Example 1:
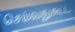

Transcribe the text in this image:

செய்வதுகூட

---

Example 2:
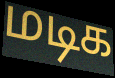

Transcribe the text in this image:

மடிக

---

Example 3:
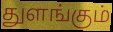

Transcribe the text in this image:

துளங்கும்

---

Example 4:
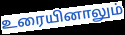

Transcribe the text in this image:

உரையினாலும்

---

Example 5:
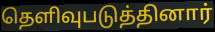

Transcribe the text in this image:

தெளிவுபடுத்தினார்